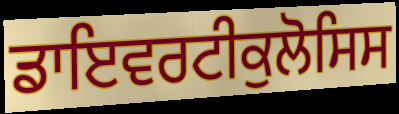
ਡਾਇਵਰਟੀਕੁਲੋਸਿਸ